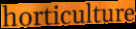
horticulture